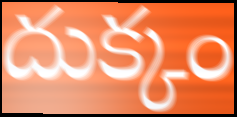
దుక్కం